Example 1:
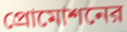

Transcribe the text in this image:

প্রোমোশনের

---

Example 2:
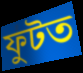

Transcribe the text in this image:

ফুটত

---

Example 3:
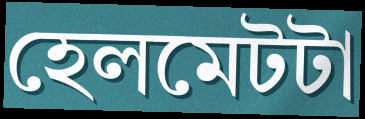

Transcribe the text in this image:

হেলমেটটা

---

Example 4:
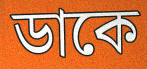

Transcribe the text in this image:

ডাকে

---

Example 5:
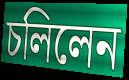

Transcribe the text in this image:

চলিলেন